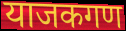
याजकगण